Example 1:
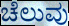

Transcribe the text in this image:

ಚೆಲುವು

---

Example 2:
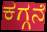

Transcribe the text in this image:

ಕಗ್ಗನೆ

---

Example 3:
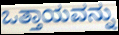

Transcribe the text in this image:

ಒತ್ತಾಯವನ್ನು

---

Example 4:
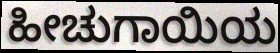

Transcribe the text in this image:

ಹೀಚುಗಾಯಿಯ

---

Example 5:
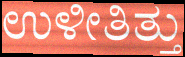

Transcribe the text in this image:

ಉಳೀತಿತ್ತು